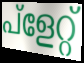
പ്ളേറ്റ്